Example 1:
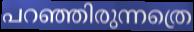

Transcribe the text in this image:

പറഞ്ഞിരുന്നത്രെ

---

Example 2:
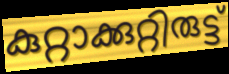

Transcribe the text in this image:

കുറ്റാക്കുറ്റിരുട്ട്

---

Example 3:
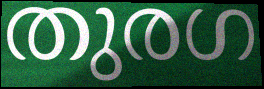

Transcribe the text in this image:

തുരഗ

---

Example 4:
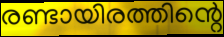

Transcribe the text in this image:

രണ്ടായിരത്തിന്റെ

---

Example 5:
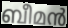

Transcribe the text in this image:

ബീമൻ